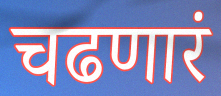
चढणारं